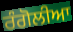
ਰੰਗੋਲੀਆ